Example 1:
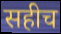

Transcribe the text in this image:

सहीच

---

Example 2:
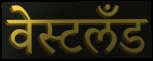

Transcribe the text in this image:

वेस्टलँड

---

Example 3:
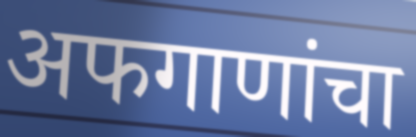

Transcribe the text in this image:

अफगाणांचा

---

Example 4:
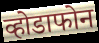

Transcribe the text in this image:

व्होडाफोन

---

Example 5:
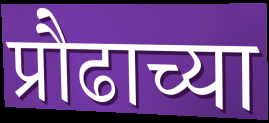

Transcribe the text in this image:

प्रौढाच्या